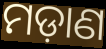
ମଡ଼ାଣ